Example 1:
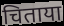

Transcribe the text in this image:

चिताया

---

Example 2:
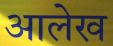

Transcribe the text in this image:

आलेख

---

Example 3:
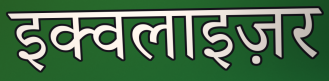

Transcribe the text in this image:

इक्वलाइज़र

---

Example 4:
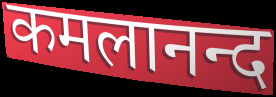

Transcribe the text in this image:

कमलानन्द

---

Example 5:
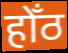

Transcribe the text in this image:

होँठ